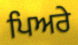
ਪਿਅਰੇ